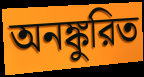
অনঙ্কুরিত